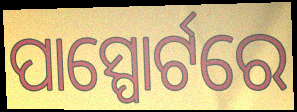
ପାସ୍ପୋର୍ଟରେ